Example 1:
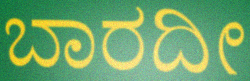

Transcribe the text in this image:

ಬಾರದೀ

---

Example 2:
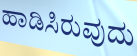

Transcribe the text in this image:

ಹಾಡಿಸಿರುವುದು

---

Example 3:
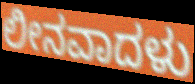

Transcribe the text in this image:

ಲೀನವಾದಳು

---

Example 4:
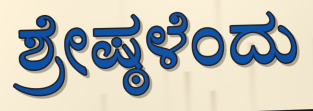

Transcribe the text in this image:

ಶ್ರೇಷ್ಠಳೆಂದು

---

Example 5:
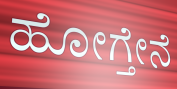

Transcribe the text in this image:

ಹೋಗ್ತೇನೆ